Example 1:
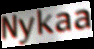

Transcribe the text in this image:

Nykaa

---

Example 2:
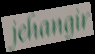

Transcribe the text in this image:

jehangir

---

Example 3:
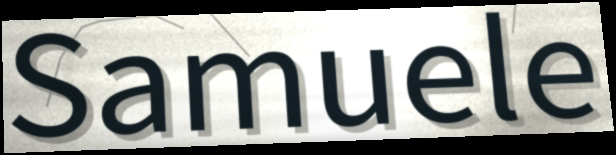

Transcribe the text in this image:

Samuele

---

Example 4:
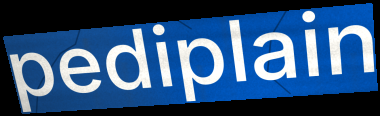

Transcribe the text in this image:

pediplain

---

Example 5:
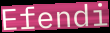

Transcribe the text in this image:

Efendi